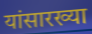
यांसारख्या